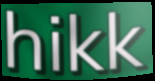
hikk